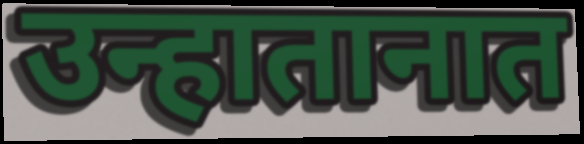
उन्हातानात